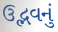
ઉદ્ભવનું